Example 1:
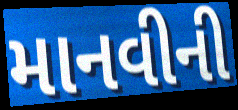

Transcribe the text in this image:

માનવીની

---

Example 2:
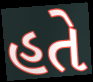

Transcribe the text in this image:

હતે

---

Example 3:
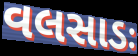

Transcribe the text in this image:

વલસાડઃ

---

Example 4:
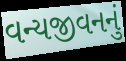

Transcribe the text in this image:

વન્યજીવનનું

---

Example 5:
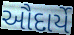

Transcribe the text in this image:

ઔદાર્યે